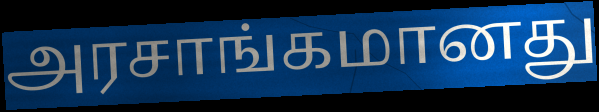
அரசாங்கமானது